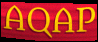
AQAP